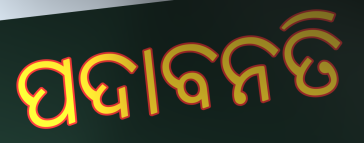
ପଦାବନତି